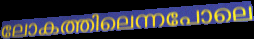
ലോകത്തിലെന്നപോലെ